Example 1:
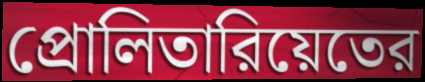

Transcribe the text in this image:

প্রোলিতারিয়েতের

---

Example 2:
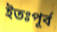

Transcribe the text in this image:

ইতঃপূর্ব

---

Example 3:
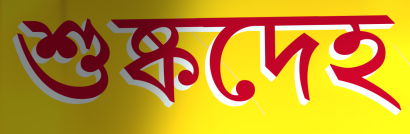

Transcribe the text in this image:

শুষ্কদেহ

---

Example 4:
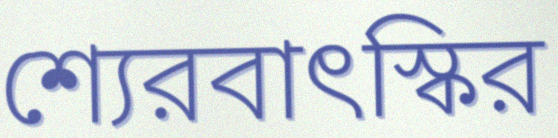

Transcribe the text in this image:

শ্যেরবাৎস্কির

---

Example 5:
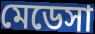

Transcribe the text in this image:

মেডেসা